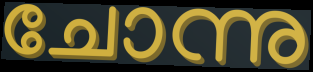
ചോന്നു